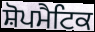
ਸ਼ੋਪਮੈਟਿਕ